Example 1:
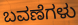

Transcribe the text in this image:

ಬವಣೆಗಳು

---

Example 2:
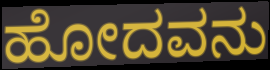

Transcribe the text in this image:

ಹೋದವನು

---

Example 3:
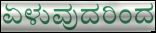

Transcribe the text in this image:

ಏಳುವುದರಿಂದ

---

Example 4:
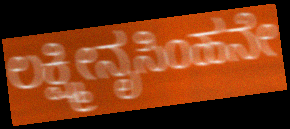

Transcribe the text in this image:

ಲಕ್ಷ್ಮೀನೃಸಿಂಹನೇ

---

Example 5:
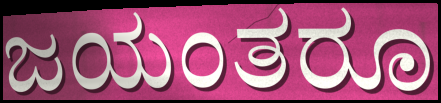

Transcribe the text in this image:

ಜಯಂತರೂ